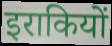
इराकियों